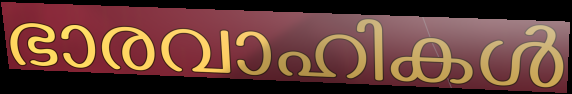
ഭാരവാഹികൾ